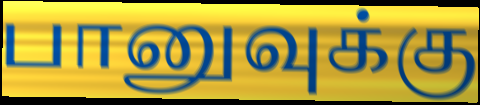
பானுவுக்கு